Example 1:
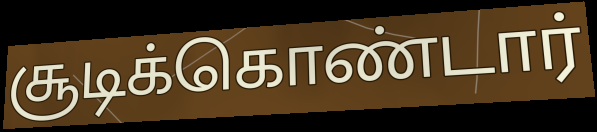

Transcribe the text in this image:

சூடிக்கொண்டார்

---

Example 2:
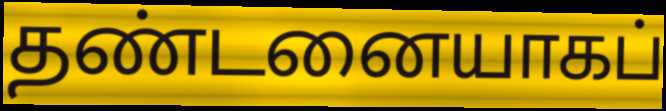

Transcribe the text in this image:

தண்டனையாகப்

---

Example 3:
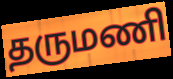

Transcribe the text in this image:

தருமணி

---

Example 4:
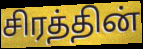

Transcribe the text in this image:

சிரத்தின்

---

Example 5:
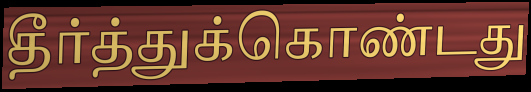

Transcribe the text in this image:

தீர்த்துக்கொண்டது